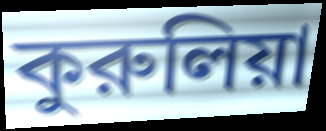
কুরুলিয়া